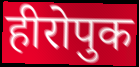
हीरोपुक